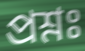
প্ৰশ্নঃ